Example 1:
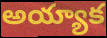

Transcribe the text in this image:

అయ్యాక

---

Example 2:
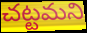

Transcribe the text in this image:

చట్టమని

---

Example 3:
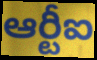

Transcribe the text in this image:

ఆర్టీఐ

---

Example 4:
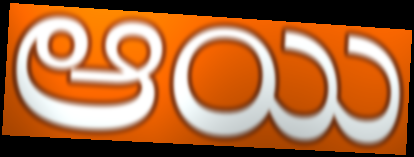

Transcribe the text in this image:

ఆయి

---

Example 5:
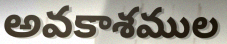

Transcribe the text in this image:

అవకాశముల